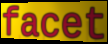
facet